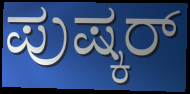
ಪುಷ್ಕರ್